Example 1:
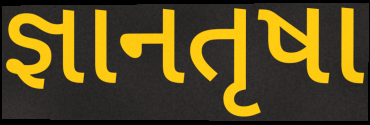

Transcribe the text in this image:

જ્ઞાનતૃષા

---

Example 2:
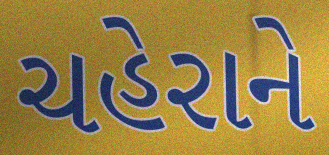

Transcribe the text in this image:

ચહેરાને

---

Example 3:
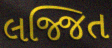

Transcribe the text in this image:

લજ્જિત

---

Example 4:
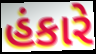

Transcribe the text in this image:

હંકારે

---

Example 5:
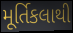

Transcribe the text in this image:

મૂર્તિકલાથી